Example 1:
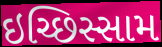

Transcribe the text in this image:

ઇચ્છિસ્સામ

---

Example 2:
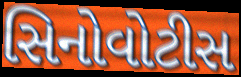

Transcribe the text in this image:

સિનોવોટીસ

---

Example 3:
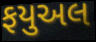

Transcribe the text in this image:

ફયુઅલ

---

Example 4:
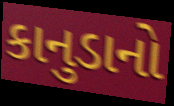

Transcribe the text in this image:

કાનુડાનો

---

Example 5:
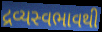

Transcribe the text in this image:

દ્રવ્યસ્વભાવથી